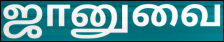
ஜானுவை